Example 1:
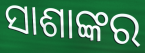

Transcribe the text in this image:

ସାଶାଙ୍କର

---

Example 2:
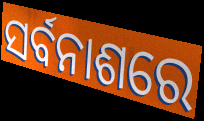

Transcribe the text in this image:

ସର୍ବନାଶରେ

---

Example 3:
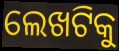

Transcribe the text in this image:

ଲେଖଟିକୁ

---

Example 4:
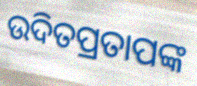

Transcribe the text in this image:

ଉଦିତପ୍ରତାପଙ୍କ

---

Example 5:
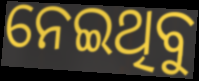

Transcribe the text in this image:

ନେଇଥିବୁ